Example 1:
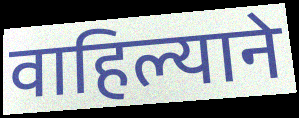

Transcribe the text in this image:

वाहिल्याने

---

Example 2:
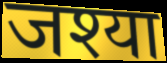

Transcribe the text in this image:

जश्या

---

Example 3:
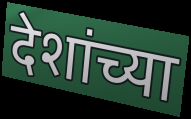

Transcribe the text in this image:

देशांच्या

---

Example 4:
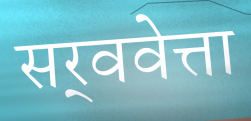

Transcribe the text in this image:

सर्ववेत्ता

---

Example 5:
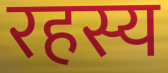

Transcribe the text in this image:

रहस्य